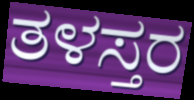
ತಳಸ್ತರ